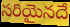
సరియైనదే